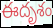
ఈదృశం